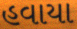
હવાયા